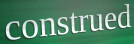
construed